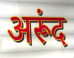
अरूंद